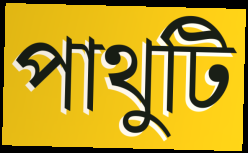
পাথুটি